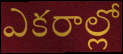
ఎకరాల్లో